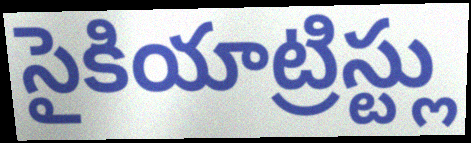
సైకియాట్రిస్ట్లు